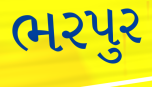
ભરપુર